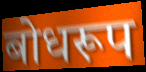
बोधरूप